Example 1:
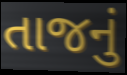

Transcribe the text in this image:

તાજનું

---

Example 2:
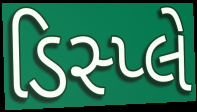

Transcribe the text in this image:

ડિસ્પ્લે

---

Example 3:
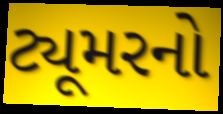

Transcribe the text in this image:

ટ્યૂમરનો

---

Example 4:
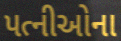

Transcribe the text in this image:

પત્નીઓના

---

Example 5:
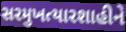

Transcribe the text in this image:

સરમુખત્યારશાહીને